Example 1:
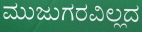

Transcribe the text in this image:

ಮುಜುಗರವಿಲ್ಲದ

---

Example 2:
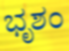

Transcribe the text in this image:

ಭೃಶಂ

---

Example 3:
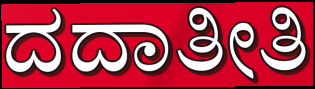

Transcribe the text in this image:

ದದಾತೀತಿ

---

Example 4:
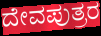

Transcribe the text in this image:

ದೇವಪುತ್ರರ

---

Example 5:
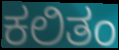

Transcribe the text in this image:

ಕಲಿತಂ